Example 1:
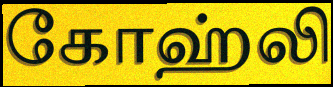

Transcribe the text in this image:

கோஹ்லி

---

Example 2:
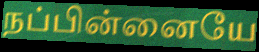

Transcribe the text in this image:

நப்பின்னையே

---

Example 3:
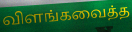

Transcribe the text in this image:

விளங்கவைத்த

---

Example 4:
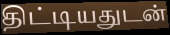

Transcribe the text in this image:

திட்டியதுடன்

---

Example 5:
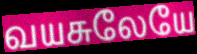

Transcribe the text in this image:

வயசுலேயே